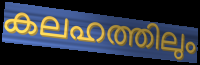
കലഹത്തിലും